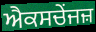
ਐਕਸਚੇਂਜਜ਼